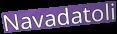
Navadatoli